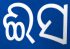
ଈସ